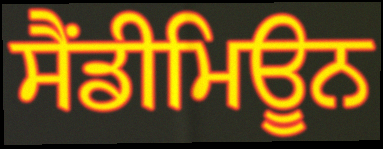
ਸੈਂਡੀਮਿਊਨ